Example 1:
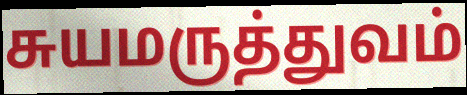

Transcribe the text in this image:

சுயமருத்துவம்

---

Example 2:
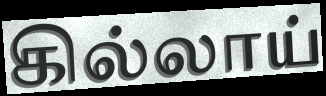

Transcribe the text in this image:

கில்லாய்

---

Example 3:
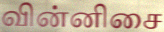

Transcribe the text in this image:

வின்னிசை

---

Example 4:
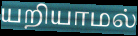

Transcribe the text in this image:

யறியாமல்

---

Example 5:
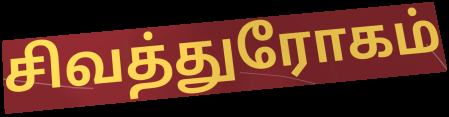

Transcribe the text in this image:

சிவத்துரோகம்